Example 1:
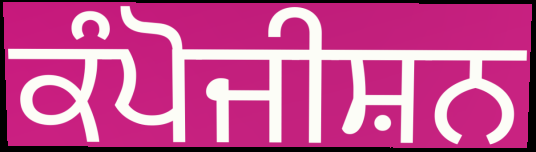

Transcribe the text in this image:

ਕੰਪੋਜੀਸ਼ਨ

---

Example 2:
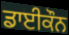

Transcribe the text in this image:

ਡਾਈਕੌਨ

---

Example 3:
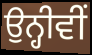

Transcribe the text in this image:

ਉਨ੍ਹੀਵੀਂ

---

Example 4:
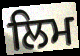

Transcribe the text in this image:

ਲਿਮ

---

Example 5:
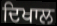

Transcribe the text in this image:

ਦਿਖਾਲ